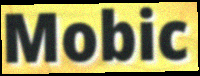
Mobic